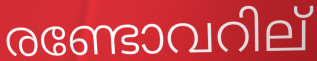
രണ്ടോവറില്